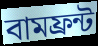
বামফ্রন্ট